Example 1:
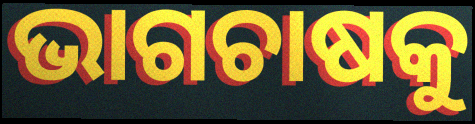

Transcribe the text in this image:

ଭାଗଚାଷକୁ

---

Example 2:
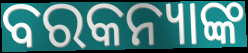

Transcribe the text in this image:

ବରକନ୍ୟାଙ୍କ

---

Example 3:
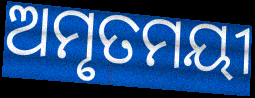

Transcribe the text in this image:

ଅମୃତମୟୀ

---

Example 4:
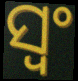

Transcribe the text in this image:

ସ୍ୱଂ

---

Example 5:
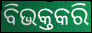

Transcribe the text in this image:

ବିଭକ୍ତକରି